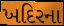
ખદિરના